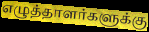
எழுத்தாளர்களுக்கு